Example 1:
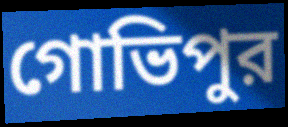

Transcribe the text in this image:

গোভিপুর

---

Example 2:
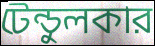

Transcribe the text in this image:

টেন্ডুলকার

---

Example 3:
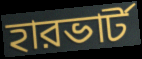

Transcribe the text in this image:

হারভার্ট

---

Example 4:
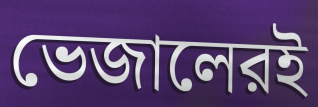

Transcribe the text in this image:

ভেজালেরই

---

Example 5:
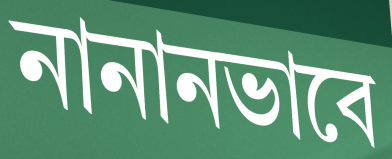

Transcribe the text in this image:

নানানভাবে